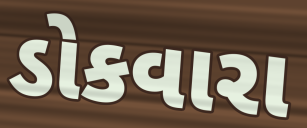
ડોકવારા